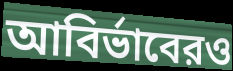
আবির্ভাবেরও